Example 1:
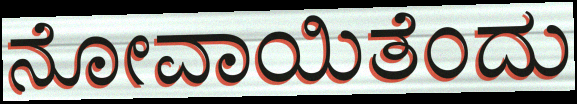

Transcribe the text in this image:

ನೋವಾಯಿತೆಂದು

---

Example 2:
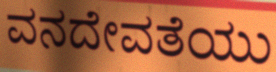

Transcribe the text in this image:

ವನದೇವತೆಯು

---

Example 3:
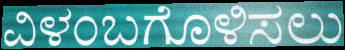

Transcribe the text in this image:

ವಿಳಂಬಗೊಳಿಸಲು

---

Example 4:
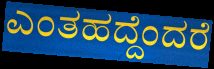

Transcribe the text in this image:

ಎಂತಹದ್ದೆಂದರೆ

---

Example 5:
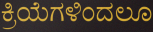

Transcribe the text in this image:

ಕ್ರಿಯೆಗಳಿಂದಲೂ